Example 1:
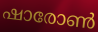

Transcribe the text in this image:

ഷാരോൺ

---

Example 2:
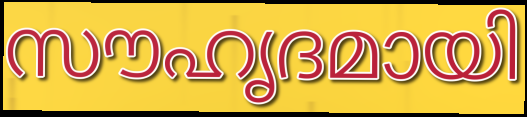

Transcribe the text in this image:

സൗഹൃദമായി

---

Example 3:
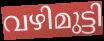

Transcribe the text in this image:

വഴിമുട്ടി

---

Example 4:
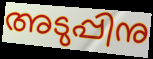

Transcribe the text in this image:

അടുപ്പിനു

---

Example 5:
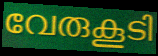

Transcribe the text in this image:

വേരുകൂടി